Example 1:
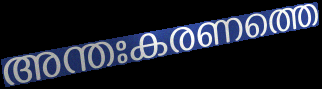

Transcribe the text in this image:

അന്തഃകരണത്തെ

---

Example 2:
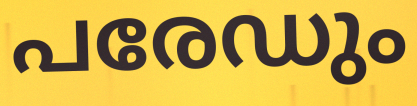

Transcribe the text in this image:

പരേഡും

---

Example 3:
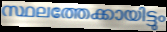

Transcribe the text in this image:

സ്ഥലത്തേക്കായിട്ടും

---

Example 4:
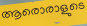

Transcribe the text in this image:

ആരൊരാളുടെ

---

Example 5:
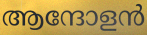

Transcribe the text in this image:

ആന്ദോളൻ